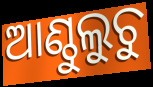
ଆଣ୍ଠୁଲୁଚୁ